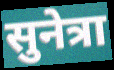
सुनेत्रा